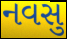
નવસુ